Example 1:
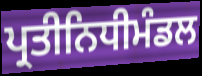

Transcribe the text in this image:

ਪ੍ਰਤੀਨਿਧੀਮੰਡਲ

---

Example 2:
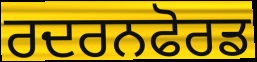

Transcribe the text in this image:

ਰਦਰਨਫੋਰਡ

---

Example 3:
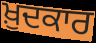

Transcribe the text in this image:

ਖ਼ੁਦਕਾਰ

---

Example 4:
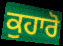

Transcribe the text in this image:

ਕੁਹਾਰੋ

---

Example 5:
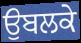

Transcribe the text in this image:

ਉਬਲਕੇ